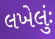
લખેલુંઃ